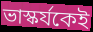
ভাস্কর্যকেই